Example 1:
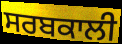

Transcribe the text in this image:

ਸਰਬਕਾਲੀ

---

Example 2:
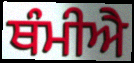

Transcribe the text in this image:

ਥੰਮੀਐ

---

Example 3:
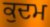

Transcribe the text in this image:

ਕੁਦਮ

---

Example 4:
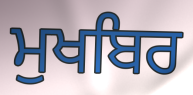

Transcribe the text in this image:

ਮੁਖਬਿਰ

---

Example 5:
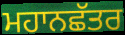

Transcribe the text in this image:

ਮਹਾਨਛੱਤਰ